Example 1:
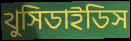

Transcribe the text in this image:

থুসিডাইডিস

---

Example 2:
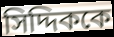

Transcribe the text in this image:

সিদ্দিককে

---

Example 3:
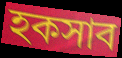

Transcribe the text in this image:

হকসাব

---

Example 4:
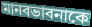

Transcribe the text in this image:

মানবভাবনাকে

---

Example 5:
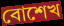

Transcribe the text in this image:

বোশেখ